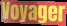
Voyager